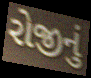
રોજીનું